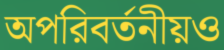
অপরিবর্তনীয়ও